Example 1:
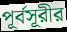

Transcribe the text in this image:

পূর্বসূরীর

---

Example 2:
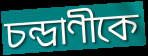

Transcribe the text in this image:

চন্দ্রাণীকে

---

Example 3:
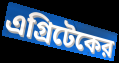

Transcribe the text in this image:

এগ্রিটেকের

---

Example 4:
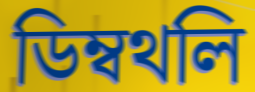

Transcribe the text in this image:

ডিম্বথলি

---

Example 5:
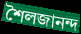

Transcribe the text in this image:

শৈলজানন্দ